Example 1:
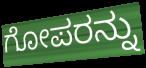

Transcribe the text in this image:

ಗೋಪರನ್ನು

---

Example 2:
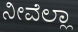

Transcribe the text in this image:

ನೀವೆಲ್ಲಾ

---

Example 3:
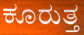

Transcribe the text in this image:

ಕೂರುತ್ತ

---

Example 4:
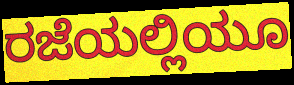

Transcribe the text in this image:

ರಜೆಯಲ್ಲಿಯೂ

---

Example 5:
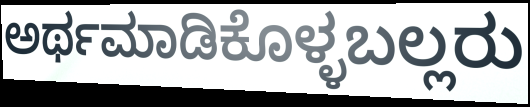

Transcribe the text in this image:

ಅರ್ಥಮಾಡಿಕೊಳ್ಳಬಲ್ಲರು